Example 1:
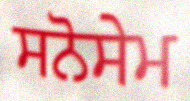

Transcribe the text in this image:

ਸਨੋਸੇਮ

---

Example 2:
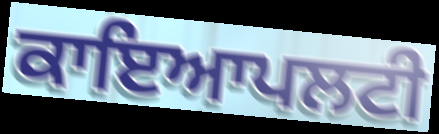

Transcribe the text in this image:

ਕਾਇਆਪਲਟੀ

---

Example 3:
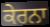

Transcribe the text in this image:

ਕੇਰਨਾ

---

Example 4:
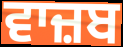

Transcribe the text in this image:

ਵਾਜ਼ਬ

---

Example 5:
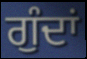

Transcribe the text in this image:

ਗੁੰਦਾਂ